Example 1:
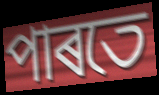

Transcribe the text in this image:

পাৰতে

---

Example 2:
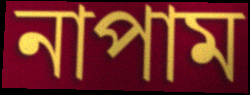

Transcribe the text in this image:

নাপাম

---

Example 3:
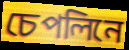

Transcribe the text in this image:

চেপলিনে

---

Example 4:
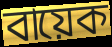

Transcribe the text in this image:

বায়েক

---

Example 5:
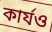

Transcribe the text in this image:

কাৰ্যও